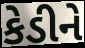
કેડીને